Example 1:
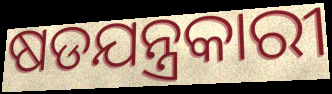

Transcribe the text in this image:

ଷଡଯନ୍ତ୍ରକାରୀ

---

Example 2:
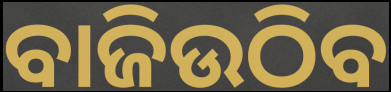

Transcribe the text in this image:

ବାଜିଉଠିବ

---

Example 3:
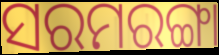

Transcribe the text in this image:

ସରମରଙ୍ଗା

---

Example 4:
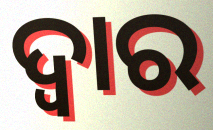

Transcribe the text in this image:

ଦ୍ବାର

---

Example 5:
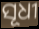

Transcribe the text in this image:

ସୂଧୀ